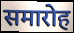
समारोह